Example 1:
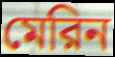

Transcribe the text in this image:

মেরিন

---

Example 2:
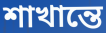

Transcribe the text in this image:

শাখান্তে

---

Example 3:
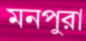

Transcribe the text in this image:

মনপুরা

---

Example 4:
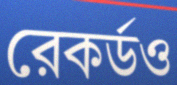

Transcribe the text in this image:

রেকর্ডও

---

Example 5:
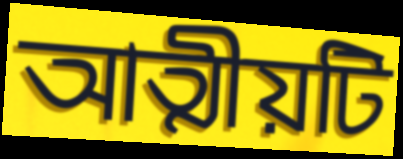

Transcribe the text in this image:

আত্মীয়টি